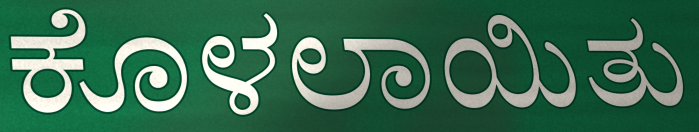
ಕೊಳಲಾಯಿತು